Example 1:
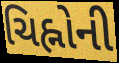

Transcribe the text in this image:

ચિહ્નોની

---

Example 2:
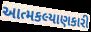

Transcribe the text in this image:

આત્મકલ્યાણકારી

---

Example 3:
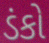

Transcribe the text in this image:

ડંકો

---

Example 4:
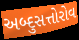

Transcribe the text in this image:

અબ્દુસત્તોરોવ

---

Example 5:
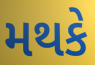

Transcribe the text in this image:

મથકે